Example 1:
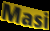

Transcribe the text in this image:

Masi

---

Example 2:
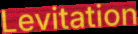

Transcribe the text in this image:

Levitation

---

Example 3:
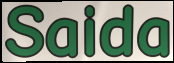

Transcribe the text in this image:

Saida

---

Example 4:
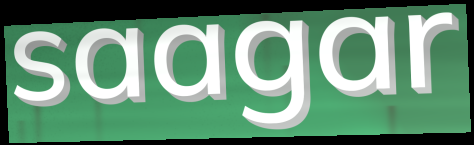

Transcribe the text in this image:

saagar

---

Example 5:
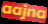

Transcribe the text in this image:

aajna